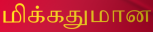
மிக்கதுமான